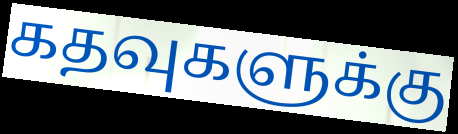
கதவுகளுக்கு